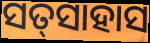
ସତ୍‌ସାହାସ